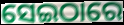
ସେଇଠାରେ